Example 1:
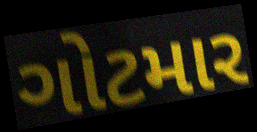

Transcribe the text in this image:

ગોટમાર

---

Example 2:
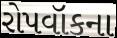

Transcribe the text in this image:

રોપવૉકના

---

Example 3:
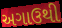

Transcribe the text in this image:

અગાઉથી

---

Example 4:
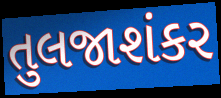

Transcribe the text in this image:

તુલજાશંકર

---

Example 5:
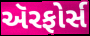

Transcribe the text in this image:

ઍરફોર્સ